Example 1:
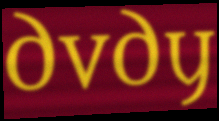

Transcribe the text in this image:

dvdy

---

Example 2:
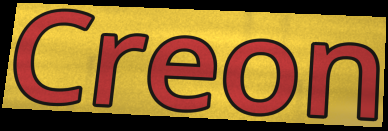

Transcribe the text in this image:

Creon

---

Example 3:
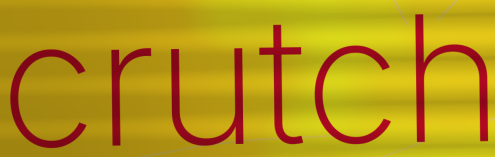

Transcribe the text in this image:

crutch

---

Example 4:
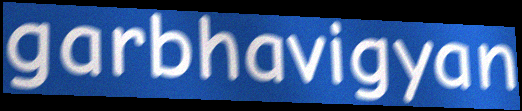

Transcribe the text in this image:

garbhavigyan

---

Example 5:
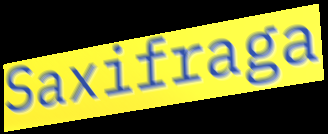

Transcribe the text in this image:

Saxifraga